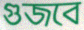
গুজবে